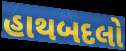
હાથબદલો